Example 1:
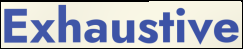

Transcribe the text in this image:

Exhaustive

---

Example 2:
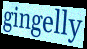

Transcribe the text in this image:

gingelly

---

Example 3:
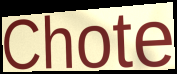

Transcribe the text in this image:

Chote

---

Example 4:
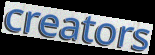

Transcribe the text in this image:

creators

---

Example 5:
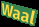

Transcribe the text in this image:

Waal